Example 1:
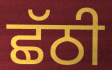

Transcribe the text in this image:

ਛੱਠੀ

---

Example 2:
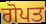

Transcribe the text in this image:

ਗੋਪਤ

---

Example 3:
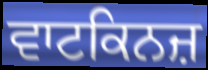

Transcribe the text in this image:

ਵਾਟਕਿਨਜ਼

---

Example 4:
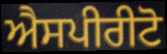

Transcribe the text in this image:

ਐਸਪੀਰੀਟੋ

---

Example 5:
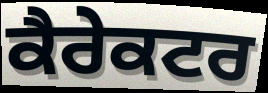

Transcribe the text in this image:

ਕੈਰੇਕਟਰ